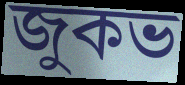
জুকভ